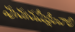
పునఃసమీక్షించాలి